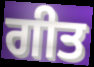
ਗੀਤ